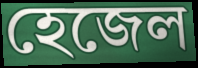
হেজেল